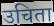
उचिता